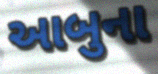
આબુના